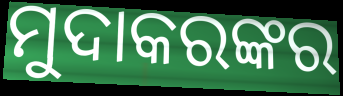
ମୁଦାକରଙ୍କର